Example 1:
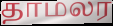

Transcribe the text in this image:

தாமலர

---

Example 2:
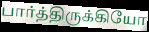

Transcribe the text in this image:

பார்த்திருக்கியோ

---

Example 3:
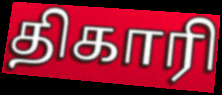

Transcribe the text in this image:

திகாரி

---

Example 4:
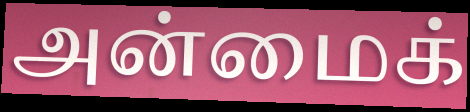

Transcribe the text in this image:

அன்மைக்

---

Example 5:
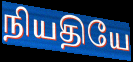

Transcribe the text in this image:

நியதியே